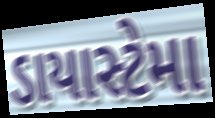
ડાયાસ્ટેમા